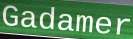
Gadamer